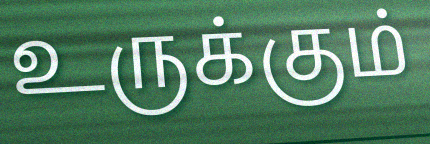
உருக்கும்